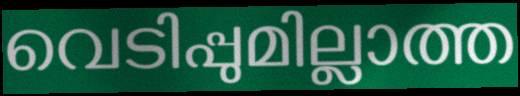
വെടിപ്പുമില്ലാത്ത